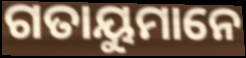
ଗତାୟୁମାନେ